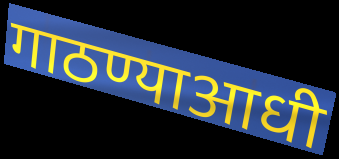
गाठण्याआधी